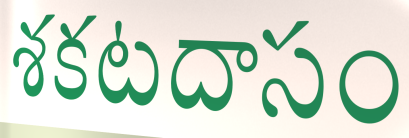
శకటదాసం